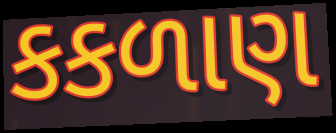
કકળાણ